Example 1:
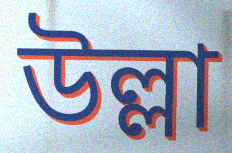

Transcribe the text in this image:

উল্লা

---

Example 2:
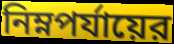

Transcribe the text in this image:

নিম্নপর্যায়ের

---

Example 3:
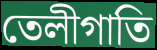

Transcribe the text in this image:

তেলীগাতি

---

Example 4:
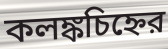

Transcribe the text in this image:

কলঙ্কচিহ্নের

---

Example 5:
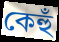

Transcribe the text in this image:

কেহুঁ